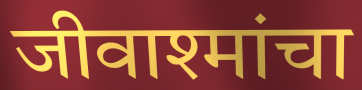
जीवाश्मांचा